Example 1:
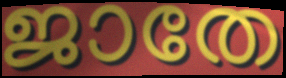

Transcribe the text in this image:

ജാതേ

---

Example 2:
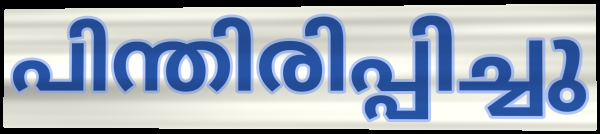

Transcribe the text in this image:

പിന്തിരിപ്പിച്ചു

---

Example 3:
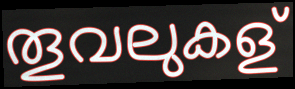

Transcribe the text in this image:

തൂവലുകള്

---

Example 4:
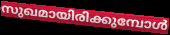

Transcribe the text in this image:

സുഖമായിരിക്കുമ്പോൾ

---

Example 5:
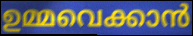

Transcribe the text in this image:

ഉമ്മവെക്കാൻ